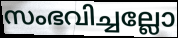
സംഭവിച്ചല്ലോ